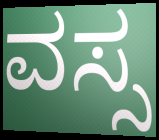
ವಸ್ಸ